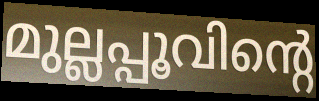
മുല്ലപ്പൂവിന്റെ